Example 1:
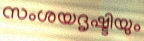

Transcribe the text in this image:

സംശയദൃഷ്ടിയും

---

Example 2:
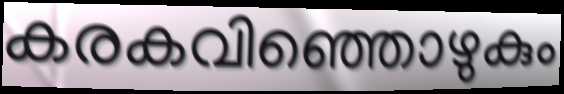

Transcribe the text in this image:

കരകവിഞ്ഞൊഴുകും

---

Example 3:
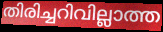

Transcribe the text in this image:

തിരിച്ചറിവില്ലാത്ത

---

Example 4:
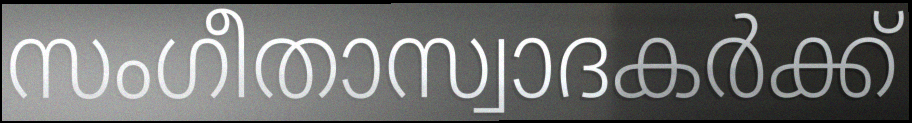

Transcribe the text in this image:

സംഗീതാസ്വാദകർക്ക്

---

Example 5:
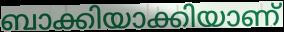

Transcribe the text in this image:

ബാക്കിയാക്കിയാണ്